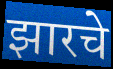
झारचे